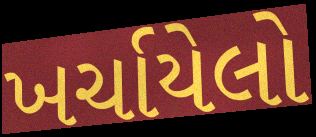
ખર્ચાયેલો